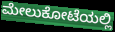
ಮೇಲುಕೋಟೆಯಲ್ಲಿ